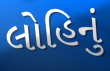
લોહિનું